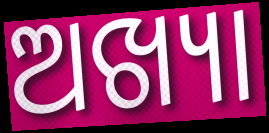
ଅଖ୍ୟା